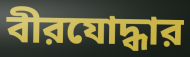
বীরযোদ্ধার